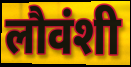
लौवंशी